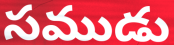
సముడు